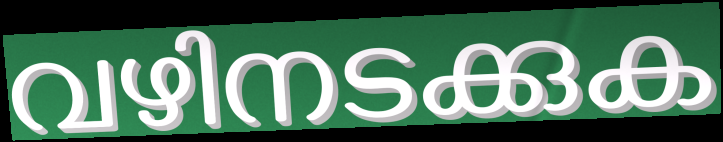
വഴിനടക്കുക